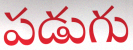
పడుగు